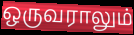
ஒருவராலும்